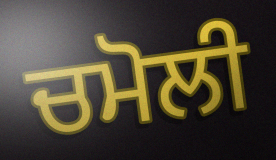
ਚਮੋਲੀ